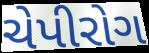
ચેપીરોગ